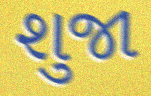
શુજા